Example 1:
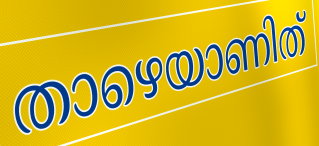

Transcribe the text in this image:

താഴെയാണിത്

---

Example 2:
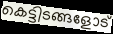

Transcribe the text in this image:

കെട്ടിടങ്ങളോട്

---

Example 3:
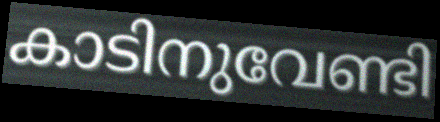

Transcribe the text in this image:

കാടിനുവേണ്ടി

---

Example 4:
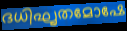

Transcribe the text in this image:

ദധിഘൃതമോഷേ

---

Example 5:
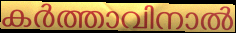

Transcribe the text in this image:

കർത്താവിനാൽ